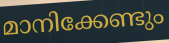
മാനിക്കേണ്ടും